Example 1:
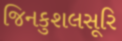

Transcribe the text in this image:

જિનકુશલસૂરિ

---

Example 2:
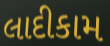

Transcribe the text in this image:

લાદીકામ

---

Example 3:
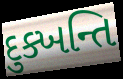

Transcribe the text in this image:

દુક્ખન્તિ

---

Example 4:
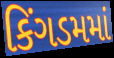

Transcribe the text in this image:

કિંગડમમાં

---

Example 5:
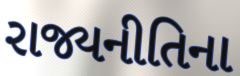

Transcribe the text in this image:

રાજ્યનીતિના